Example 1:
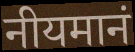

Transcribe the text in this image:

नीयमानं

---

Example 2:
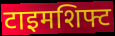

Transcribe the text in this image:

टाइमशिफ्ट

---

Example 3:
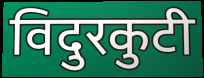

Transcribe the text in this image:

विदुरकुटी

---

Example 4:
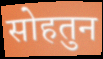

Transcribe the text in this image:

सोहतुन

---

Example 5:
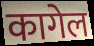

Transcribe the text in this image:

कागेल